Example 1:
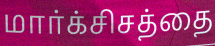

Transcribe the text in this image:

மார்க்சிசத்தை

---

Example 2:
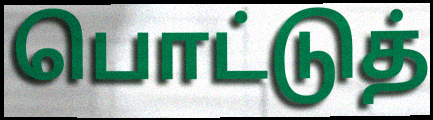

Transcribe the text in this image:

பொட்டுத்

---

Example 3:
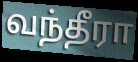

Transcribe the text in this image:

வந்தீரா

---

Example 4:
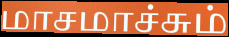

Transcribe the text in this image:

மாசமாச்சும்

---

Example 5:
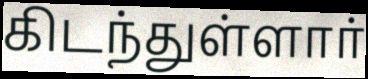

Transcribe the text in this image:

கிடந்துள்ளார்